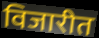
विजारीत